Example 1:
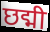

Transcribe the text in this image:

छद्मी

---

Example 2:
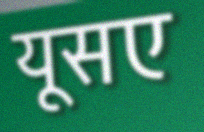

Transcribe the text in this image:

यूसए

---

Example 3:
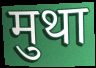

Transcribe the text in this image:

मुथा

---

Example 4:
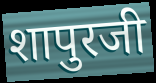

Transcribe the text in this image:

शापुरजी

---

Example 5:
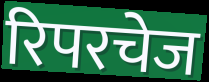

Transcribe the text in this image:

रिपरचेज